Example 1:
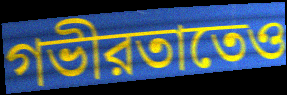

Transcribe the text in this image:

গভীরতাতেও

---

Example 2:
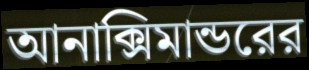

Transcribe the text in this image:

আনাক্সিমান্ডরের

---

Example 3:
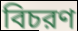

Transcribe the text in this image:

বিচরণ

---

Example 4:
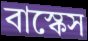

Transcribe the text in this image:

বাস্কেস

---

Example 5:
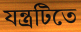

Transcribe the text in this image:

যন্ত্রটিতে